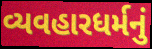
વ્યવહારધર્મનું